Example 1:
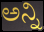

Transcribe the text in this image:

ಅನ್ನಿ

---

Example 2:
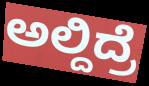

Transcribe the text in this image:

ಅಲ್ದಿದ್ರೆ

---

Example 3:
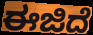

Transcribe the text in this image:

ಈಜಿದೆ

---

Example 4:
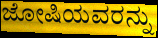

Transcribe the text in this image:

ಜೋಷಿಯವರನ್ನು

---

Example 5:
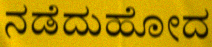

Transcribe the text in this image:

ನಡೆದುಹೋದ